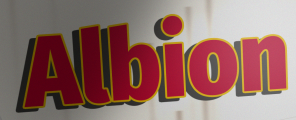
Albion